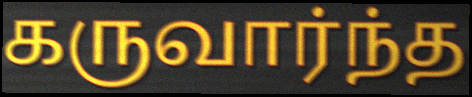
கருவார்ந்த